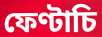
ফেণ্টাচি